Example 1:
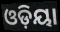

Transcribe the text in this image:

ଓଡ଼ିୟା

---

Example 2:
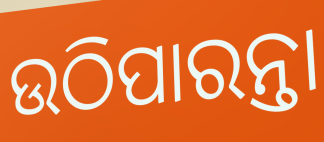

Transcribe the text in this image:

ଉଠିପାରନ୍ତା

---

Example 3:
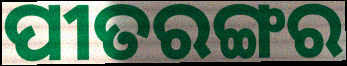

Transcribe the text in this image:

ପୀତରଙ୍ଗର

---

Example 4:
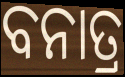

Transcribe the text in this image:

ବନାତ୍ର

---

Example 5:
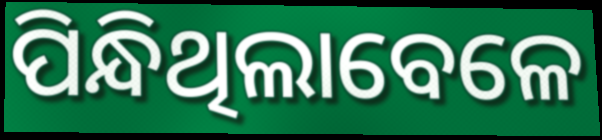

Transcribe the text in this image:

ପିନ୍ଧିଥିଲାବେଳେ